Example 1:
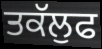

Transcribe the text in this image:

ਤਕੱਲੁਫ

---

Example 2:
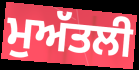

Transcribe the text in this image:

ਮੁਅੱਤਲੀ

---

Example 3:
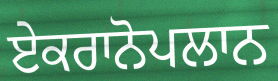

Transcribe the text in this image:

ਏਕਰਾਨੋਪਲਾਨ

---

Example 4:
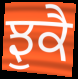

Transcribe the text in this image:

ਝੁਕੈ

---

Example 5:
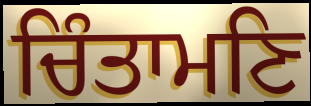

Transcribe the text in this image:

ਚਿੰਤਾਮਣਿ